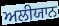
ਅਲੀਯਾਨ